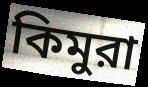
কিমুরা